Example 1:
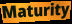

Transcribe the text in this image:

Maturity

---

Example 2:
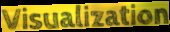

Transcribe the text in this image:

Visualization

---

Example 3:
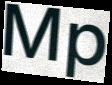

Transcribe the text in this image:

Mp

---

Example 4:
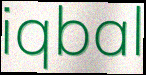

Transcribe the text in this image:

iqbal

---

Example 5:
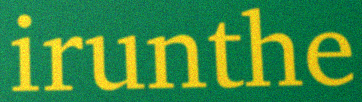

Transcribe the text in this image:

irunthe